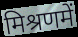
मिश्रणमें